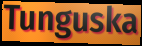
Tunguska